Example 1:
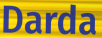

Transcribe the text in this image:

Darda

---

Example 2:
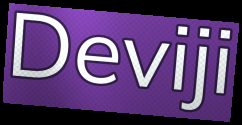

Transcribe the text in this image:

Deviji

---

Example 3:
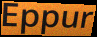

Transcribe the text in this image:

Eppur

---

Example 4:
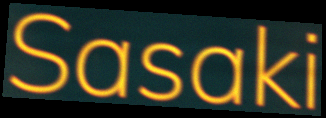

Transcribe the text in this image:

Sasaki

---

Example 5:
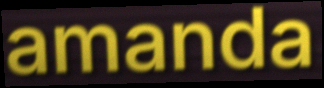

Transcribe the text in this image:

amanda